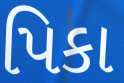
પિકા